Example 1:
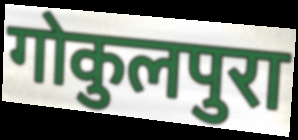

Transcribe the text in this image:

गोकुलपुरा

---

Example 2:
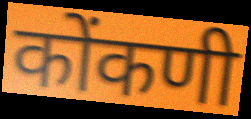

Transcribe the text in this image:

कोंकणी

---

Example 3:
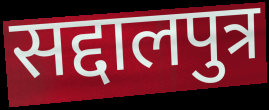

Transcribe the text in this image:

सद्दालपुत्र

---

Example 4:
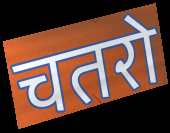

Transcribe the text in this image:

चतरो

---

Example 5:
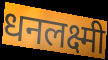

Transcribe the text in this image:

धनलक्ष्मी